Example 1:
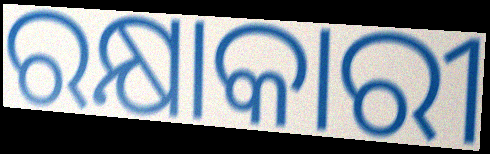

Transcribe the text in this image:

ରକ୍ଷାକାରୀ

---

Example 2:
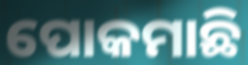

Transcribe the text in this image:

ପୋକମାଛି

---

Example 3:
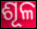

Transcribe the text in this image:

ଶୂଳ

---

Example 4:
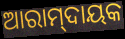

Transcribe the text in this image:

ଆରାମ୍‌ଦାୟକ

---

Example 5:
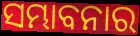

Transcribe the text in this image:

ସମ୍ଭାବନାର